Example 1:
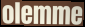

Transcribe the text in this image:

olemme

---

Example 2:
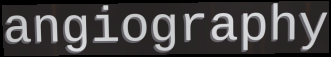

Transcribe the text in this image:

angiography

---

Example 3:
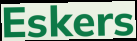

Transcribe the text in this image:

Eskers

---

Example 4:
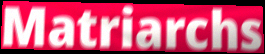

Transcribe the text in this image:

Matriarchs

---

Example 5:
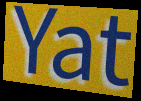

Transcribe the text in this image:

Yat